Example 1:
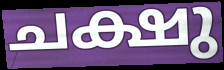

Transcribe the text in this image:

ചക്ഷു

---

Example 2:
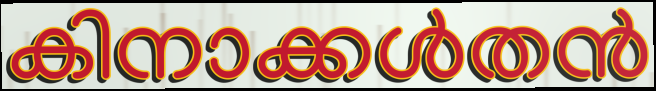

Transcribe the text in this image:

കിനാക്കൾതൻ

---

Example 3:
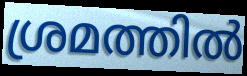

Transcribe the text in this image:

ശ്രമത്തിൽ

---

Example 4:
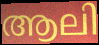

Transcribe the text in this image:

ആലി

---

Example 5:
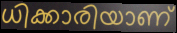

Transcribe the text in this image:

ധിക്കാരിയാണ്